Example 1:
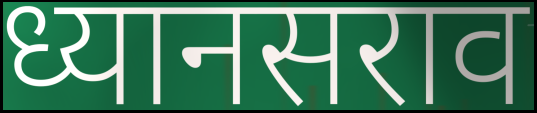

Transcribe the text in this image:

ध्यानसराव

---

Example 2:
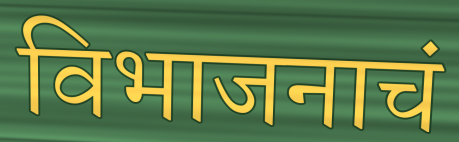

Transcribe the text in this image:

विभाजनाचं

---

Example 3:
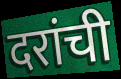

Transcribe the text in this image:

दरांची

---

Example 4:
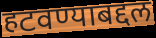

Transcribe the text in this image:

हटवण्याबद्दल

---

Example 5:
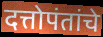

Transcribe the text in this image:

दत्तोपंतांचे